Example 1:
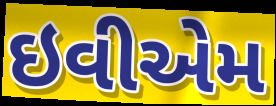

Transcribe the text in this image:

ઇવીએમ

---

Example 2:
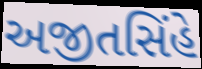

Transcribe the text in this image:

અજીતસિંહે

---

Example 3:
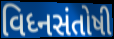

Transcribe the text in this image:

વિધ્નસંતોષી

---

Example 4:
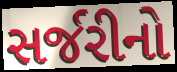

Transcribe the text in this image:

સર્જરીનો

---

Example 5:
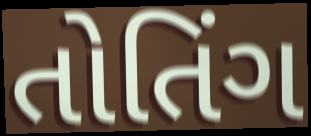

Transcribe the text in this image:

તોતિંગ